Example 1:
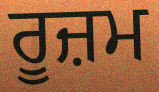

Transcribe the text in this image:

ਰੂਜ਼ਮ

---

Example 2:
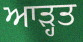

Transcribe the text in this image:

ਆੜ੍ਹਤ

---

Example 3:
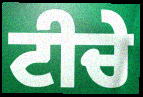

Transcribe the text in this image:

ਟੀਚੇ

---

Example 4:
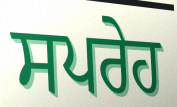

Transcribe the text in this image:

ਸਪਰੇਹ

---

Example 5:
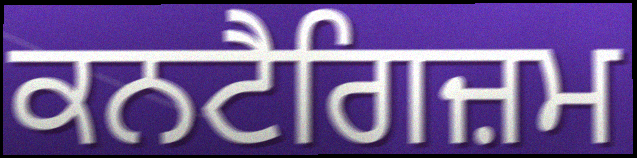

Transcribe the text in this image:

ਕਨਟੈਗਿਜ਼ਮ